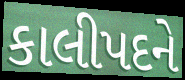
કાલીપદને